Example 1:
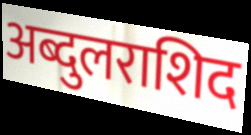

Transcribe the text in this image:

अब्दुलराशिद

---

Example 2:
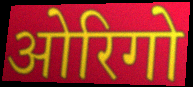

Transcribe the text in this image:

ओरिगो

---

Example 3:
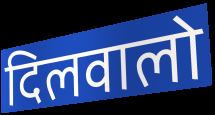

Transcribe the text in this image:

दिलवालो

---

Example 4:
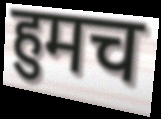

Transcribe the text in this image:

हुमच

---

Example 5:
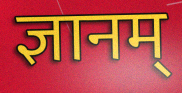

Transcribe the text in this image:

ज्ञानम्